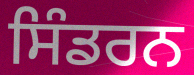
ਸਿੰਡਰਨ